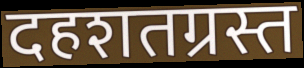
दहशतग्रस्त